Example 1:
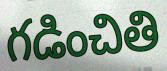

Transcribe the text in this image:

గడించితి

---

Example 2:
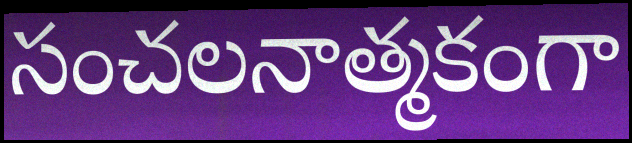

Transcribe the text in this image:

సంచలనాత్మకంగా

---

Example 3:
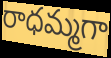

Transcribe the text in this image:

రాధమ్మగా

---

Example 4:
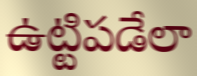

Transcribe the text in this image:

ఉట్టిపడేలా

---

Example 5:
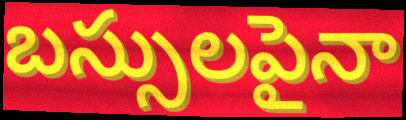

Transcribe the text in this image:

బస్సులపైనా